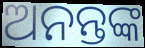
ଅନନ୍ତଙ୍କ